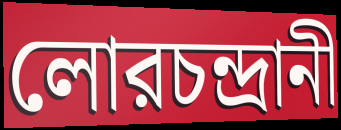
লোরচন্দ্রানী